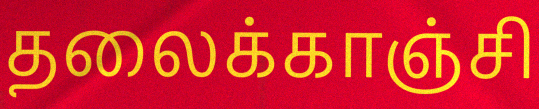
தலைக்காஞ்சி